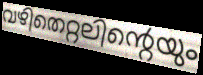
വഴിതെറ്റലിന്റെയും